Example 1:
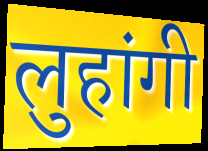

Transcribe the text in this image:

लुहांगी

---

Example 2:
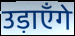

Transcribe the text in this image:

उड़ाएँगे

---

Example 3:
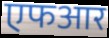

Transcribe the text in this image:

एफआर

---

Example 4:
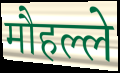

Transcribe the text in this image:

मौहल्ले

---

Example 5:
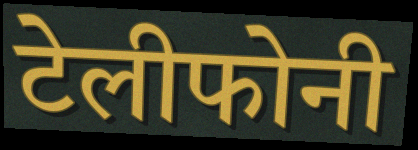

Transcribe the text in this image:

टेलीफोनी